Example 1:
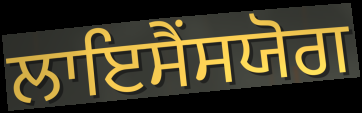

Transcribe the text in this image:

ਲਾਇਸੈਂਸਯੋਗ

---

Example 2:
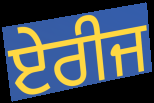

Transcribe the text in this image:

ਏਰੀਜ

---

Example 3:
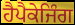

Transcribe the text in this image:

ਹੈਪੈਕੇਜਿੰਗ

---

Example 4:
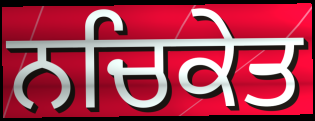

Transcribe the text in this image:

ਨਚਿਕੇਤ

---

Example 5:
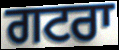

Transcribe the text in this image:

ਗਟਰਾ